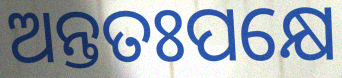
ଅନ୍ତତଃପକ୍ଷେ